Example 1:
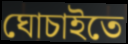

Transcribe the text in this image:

ঘোচাইতে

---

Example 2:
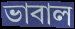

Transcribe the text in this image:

ভাবাল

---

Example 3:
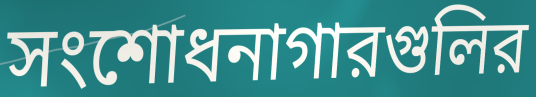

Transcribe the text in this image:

সংশোধনাগারগুলির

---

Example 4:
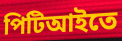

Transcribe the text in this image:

পিটিআইতে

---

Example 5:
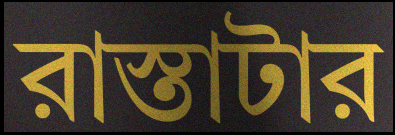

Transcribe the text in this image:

রাস্তাটার